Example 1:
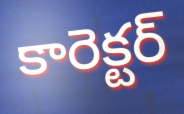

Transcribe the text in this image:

కారెక్టర్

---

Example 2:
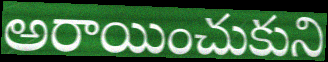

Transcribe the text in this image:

అరాయించుకుని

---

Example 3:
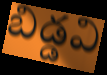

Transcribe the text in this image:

బిడ్డవి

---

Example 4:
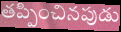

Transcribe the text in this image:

తప్పించినపుడు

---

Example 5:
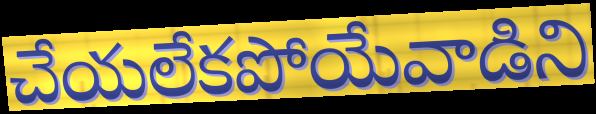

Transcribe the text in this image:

చేయలేకపోయేవాడిని